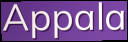
Appala